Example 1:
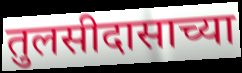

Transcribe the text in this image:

तुलसीदासाच्या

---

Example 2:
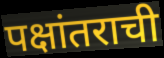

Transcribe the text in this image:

पक्षांतराची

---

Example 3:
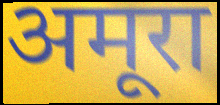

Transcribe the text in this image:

अमूरा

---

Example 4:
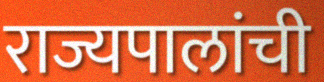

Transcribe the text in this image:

राज्यपालांची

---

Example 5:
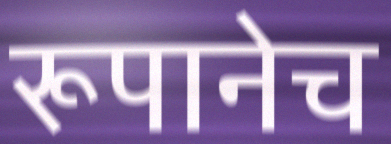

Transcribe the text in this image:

रूपानेच